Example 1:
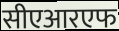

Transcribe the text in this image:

सीएआरएफ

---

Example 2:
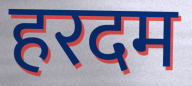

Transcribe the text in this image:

हरदम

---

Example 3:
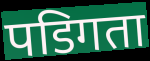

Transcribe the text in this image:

पडिगता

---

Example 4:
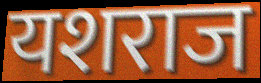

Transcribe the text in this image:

यशराज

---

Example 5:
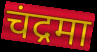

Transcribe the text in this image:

चंद्रमा